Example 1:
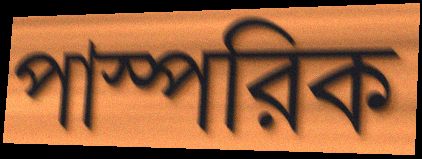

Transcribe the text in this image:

পাস্পরিক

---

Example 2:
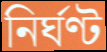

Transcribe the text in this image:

নির্ঘণ্ট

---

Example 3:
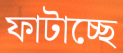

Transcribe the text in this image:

ফাটাচ্ছে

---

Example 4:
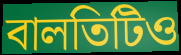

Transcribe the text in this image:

বালতিটিও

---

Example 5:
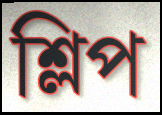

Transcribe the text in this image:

শ্লিপ